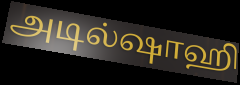
அடில்ஷாஹி